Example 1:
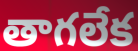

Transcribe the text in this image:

తాగలేక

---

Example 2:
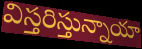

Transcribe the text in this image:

విస్తరిస్తున్నాయా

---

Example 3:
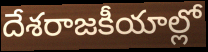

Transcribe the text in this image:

దేశరాజకీయాల్లో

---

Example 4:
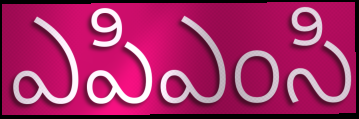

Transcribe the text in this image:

ఎపిఎంసి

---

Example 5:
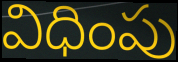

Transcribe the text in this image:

విధింపు